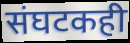
संघटकही